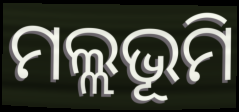
ମଲ୍ଲଭୂମି